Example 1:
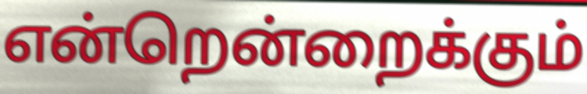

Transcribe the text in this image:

என்றென்றைக்கும்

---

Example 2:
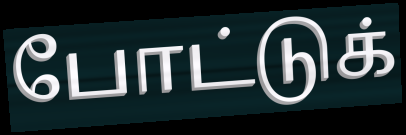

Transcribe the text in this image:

போட்டுக்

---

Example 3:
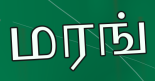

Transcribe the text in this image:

மரங்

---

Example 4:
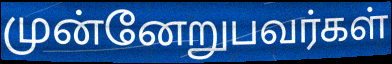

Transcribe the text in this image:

முன்னேறுபவர்கள்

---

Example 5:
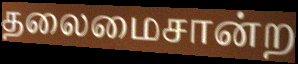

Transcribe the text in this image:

தலைமைசான்ற